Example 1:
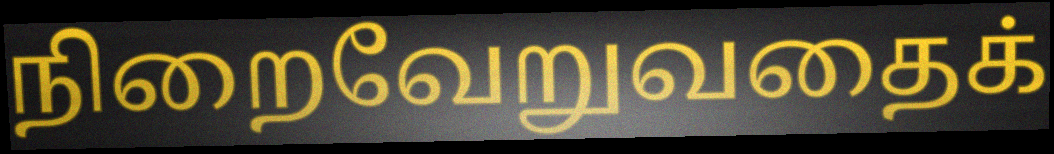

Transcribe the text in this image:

நிறைவேறுவதைக்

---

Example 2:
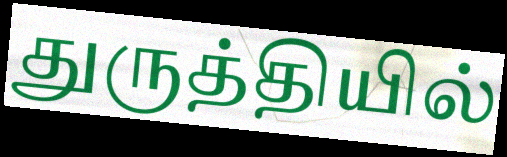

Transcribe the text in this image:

துருத்தியில்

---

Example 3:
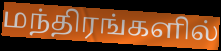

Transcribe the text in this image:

மந்திரங்களில்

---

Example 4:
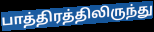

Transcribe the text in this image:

பாத்திரத்திலிருந்து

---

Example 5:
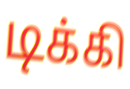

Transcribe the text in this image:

டிக்கி